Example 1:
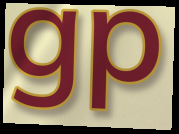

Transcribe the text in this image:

gp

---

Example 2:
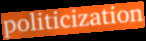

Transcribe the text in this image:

politicization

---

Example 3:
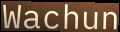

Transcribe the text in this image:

Wachun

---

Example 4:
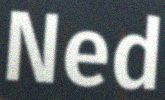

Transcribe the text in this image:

Ned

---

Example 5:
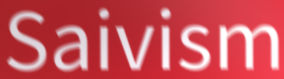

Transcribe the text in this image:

Saivism